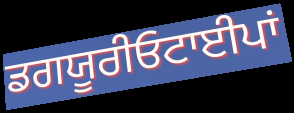
ਡਗਯੂਰੀਓਟਾਈਪਾਂ